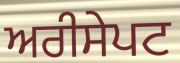
ਅਰੀਸੇਪਟ